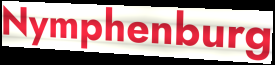
Nymphenburg